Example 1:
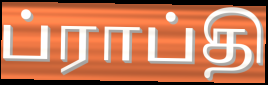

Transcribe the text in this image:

ப்ராப்தி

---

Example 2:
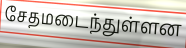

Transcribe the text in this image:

சேதமடைந்துள்ளன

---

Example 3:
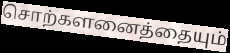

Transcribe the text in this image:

சொற்களனைத்தையும்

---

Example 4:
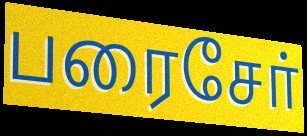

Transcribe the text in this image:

பரைசேர்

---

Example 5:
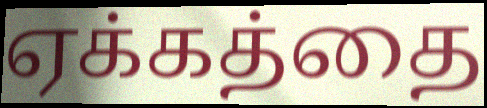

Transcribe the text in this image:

ஏக்கத்தை